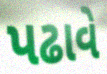
પઢાવે